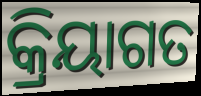
କ୍ରିୟାଗତ